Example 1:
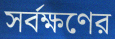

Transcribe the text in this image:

সর্বক্ষণের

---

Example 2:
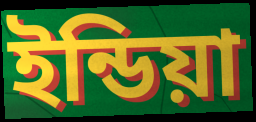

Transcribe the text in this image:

ইন্ডিয়া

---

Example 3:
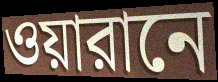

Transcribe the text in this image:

ওয়ারানে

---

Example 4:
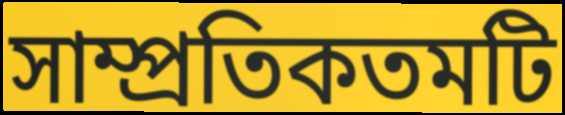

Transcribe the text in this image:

সাম্প্রতিকতমটি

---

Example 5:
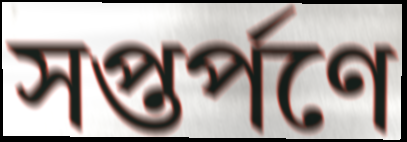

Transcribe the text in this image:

সপ্তর্পণে